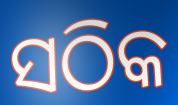
ସଠିକ